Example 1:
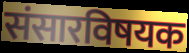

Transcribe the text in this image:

संसारविषयक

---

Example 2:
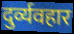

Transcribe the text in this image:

दुर्व्यवहार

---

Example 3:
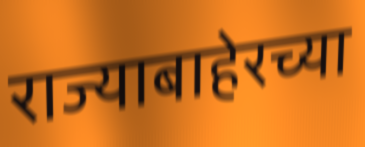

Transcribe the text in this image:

राज्याबाहेरच्या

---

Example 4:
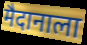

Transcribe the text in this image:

मैदानाला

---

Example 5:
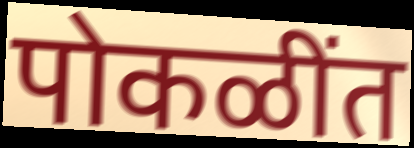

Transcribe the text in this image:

पोकळींत